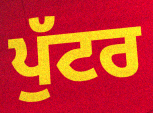
ਪੁੱਟਰ